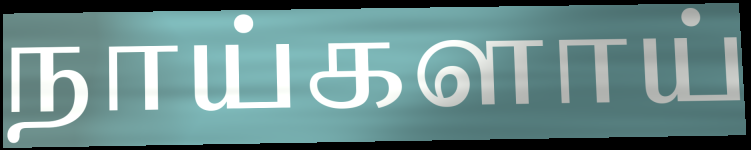
நாய்களாய்